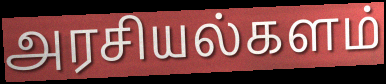
அரசியல்களம்